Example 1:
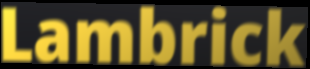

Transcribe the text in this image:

Lambrick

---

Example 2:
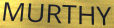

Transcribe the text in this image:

MURTHY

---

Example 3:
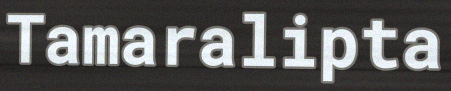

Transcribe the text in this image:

Tamaralipta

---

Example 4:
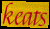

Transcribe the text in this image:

keats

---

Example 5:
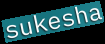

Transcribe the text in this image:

sukesha